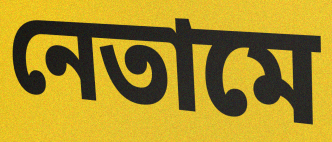
নেতামে